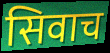
सिवाच